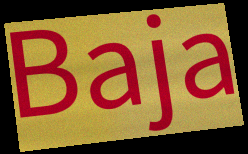
Baja